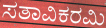
ಸತಾವಿಕರಮಿ